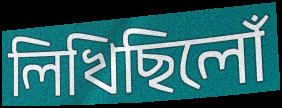
লিখিছিলোঁ